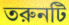
তরুনটি